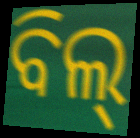
ବିଲ୍